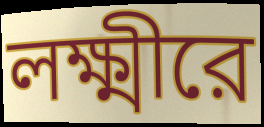
লক্ষ্মীরে